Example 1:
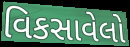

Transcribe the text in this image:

વિકસાવેલો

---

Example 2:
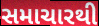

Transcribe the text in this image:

સમાચારથી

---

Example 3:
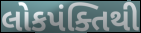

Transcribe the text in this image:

લોકપંક્તિથી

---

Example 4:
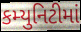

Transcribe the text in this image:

કમ્યુનિટીમાં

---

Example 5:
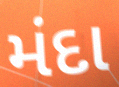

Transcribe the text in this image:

મંદા